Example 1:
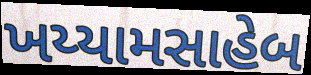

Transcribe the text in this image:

ખય્યામસાહેબ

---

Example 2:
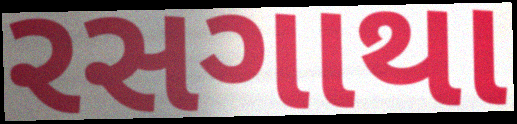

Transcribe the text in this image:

રસગાથા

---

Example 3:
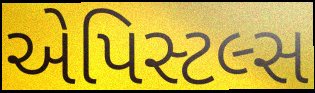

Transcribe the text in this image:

એપિસ્ટલ્સ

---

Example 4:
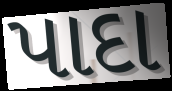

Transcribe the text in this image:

પાદા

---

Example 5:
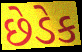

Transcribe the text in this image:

છેડેક